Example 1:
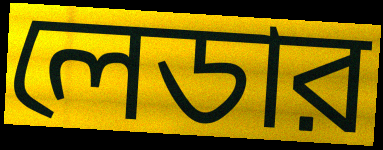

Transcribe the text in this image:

লেডার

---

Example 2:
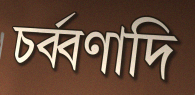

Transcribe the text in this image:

চর্ব্বণাদি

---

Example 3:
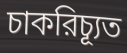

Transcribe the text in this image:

চাকরিচ্যূত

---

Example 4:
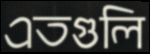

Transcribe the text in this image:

এতগুলি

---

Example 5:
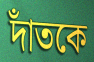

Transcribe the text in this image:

দাঁতকে